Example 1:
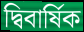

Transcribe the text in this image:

দ্বিবার্ষিক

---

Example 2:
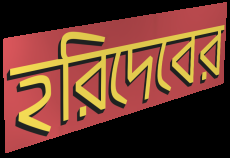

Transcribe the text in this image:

হরিদেবের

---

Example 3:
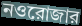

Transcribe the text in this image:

নওরোজার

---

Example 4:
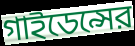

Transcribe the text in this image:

গাইডেন্সের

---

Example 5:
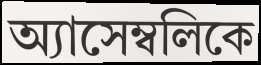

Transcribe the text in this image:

অ্যাসেম্বলিকে